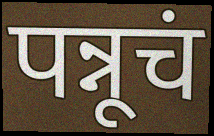
पन्नूचं